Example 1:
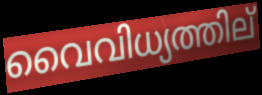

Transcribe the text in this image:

വൈവിധ്യത്തില്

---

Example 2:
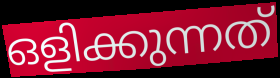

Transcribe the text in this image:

ഒളിക്കുന്നത്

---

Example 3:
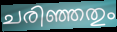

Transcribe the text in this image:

ചരിഞ്ഞതും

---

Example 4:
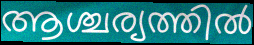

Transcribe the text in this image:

ആശ്ചര്യത്തിൽ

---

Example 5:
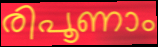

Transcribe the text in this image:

രിപൂണാം